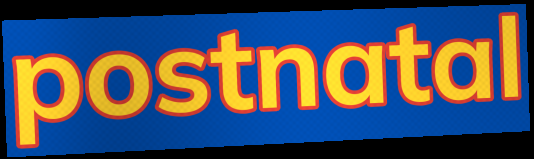
postnatal